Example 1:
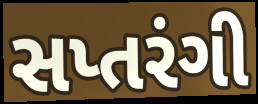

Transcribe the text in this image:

સપ્તરંગી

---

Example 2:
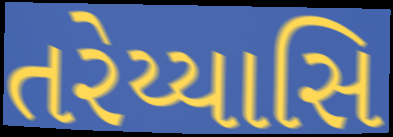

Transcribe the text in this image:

તરેય્યાસિ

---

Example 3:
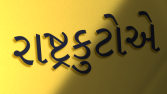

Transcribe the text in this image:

રાષ્ટ્રકુટોએ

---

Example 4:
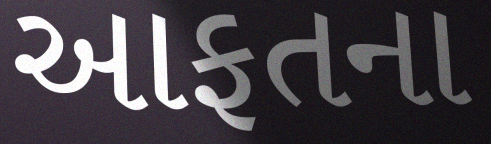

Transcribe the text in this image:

આફતના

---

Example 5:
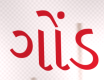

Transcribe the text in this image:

ગોંડ